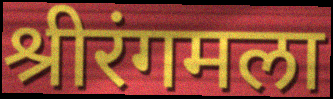
श्रीरंगमला